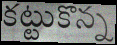
కట్టుకొన్న